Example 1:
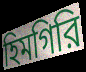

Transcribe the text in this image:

হিমগিরি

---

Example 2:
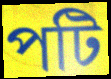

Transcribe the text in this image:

পটি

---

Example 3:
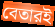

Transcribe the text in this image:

বেতারই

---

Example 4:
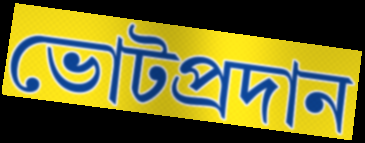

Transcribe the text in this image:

ভোটপ্রদান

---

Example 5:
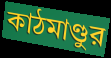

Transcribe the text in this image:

কাঠমাণ্ডুর